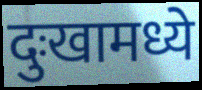
दुःखामध्ये